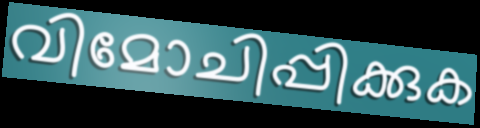
വിമോചിപ്പിക്കുക